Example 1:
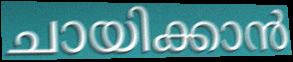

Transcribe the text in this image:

ചായിക്കാൻ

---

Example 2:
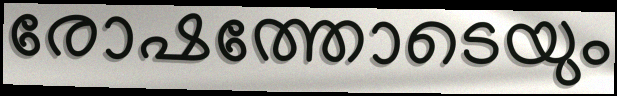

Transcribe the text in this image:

രോഷത്തോടെയും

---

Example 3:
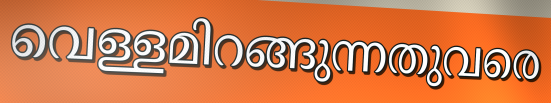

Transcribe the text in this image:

വെള്ളമിറങ്ങുന്നതുവരെ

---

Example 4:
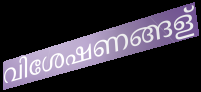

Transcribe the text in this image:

വിശേഷണങ്ങള്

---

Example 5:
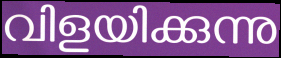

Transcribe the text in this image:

വിളയിക്കുന്നു